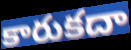
కారుకదా